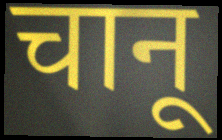
चानू